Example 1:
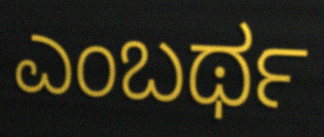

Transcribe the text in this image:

ಎಂಬರ್ಥ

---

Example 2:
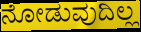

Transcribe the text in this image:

ನೋಡುವುದಿಲ್ಲ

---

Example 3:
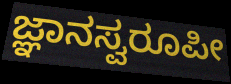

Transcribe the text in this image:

ಜ್ಞಾನಸ್ವರೂಪೀ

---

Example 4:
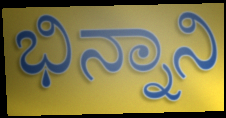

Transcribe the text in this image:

ಭಿನ್ನಾನಿ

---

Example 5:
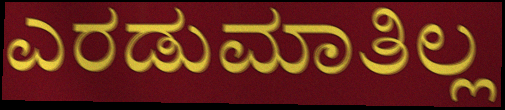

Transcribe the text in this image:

ಎರಡುಮಾತಿಲ್ಲ